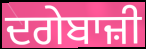
ਦਗੇਬਾਜ਼ੀ